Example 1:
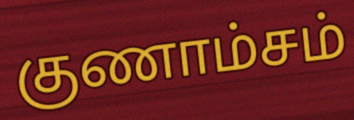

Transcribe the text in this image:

குணாம்சம்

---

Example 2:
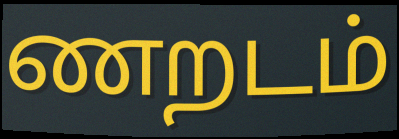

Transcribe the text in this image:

ணறடம்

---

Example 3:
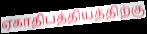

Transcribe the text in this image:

ஏகாதிபத்தியத்திற்கு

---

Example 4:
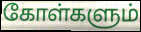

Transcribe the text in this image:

கோள்களும்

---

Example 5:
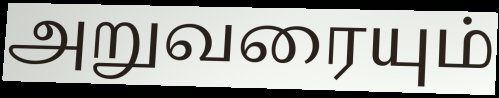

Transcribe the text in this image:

அறுவரையும்